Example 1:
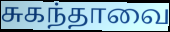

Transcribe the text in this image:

சுகந்தாவை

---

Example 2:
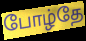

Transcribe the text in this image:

போழ்தே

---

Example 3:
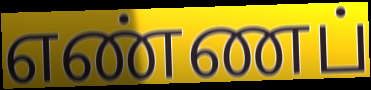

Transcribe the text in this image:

எண்ணப்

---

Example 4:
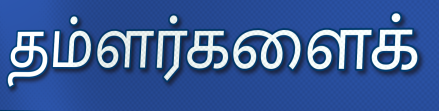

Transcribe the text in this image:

தம்ளர்களைக்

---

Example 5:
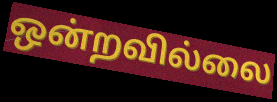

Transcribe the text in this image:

ஒன்றவில்லை